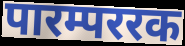
पारम्पररक